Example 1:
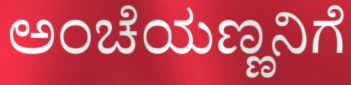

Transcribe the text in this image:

ಅಂಚೆಯಣ್ಣನಿಗೆ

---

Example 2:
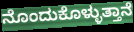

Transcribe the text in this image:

ನೊಂದುಕೊಳ್ಳುತ್ತಾನೆ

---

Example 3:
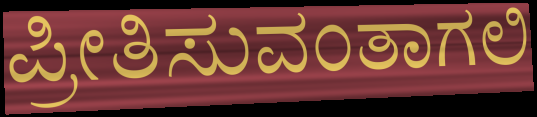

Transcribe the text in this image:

ಪ್ರೀತಿಸುವಂತಾಗಲಿ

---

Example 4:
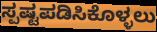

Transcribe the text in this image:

ಸ್ಪಷ್ಟಪಡಿಸಿಕೊಳ್ಳಲು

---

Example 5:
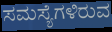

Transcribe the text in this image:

ಸಮಸ್ಯೆಗಳಿರುವ